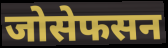
जोसेफसन